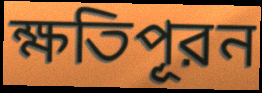
ক্ষতিপূরন